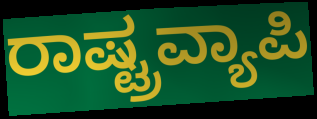
ರಾಷ್ಟ್ರವ್ಯಾಪಿ